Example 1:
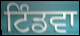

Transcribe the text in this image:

ਟਿੰਡਵਾ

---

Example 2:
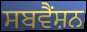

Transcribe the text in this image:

ਸਬਵੈਂਸ਼ਨ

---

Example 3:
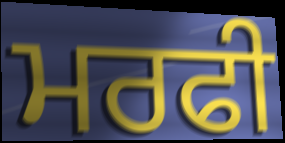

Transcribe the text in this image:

ਮਰਫੀ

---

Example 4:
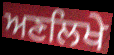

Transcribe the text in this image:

ਅਣਲਿਖੇ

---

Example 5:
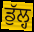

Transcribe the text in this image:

ਡੁੱਲ੍ਹ